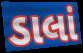
ડાલાં